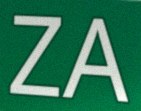
ZA